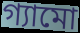
গ্যামো